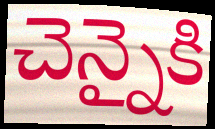
చెన్నైకి